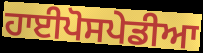
ਹਾਈਪੋਸਪੇਡੀਆ